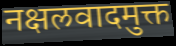
नक्षलवादमुक्त